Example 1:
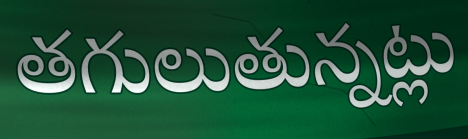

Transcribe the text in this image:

తగులుతున్నట్లు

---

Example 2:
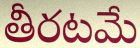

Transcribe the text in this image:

తీరటమే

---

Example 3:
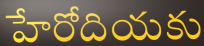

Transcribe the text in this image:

హేరోదియకు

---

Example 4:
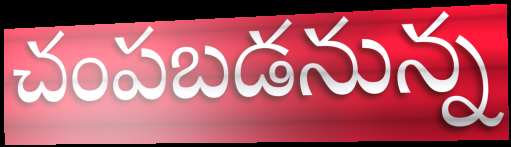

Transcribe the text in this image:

చంపబడనున్న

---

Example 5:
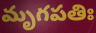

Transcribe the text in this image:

మృగపతిః